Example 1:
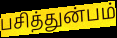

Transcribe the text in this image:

பசித்துன்பம்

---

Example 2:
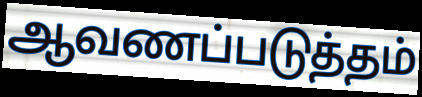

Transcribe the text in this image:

ஆவணப்படுத்தம்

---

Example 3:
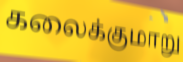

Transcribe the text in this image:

கலைக்குமாறு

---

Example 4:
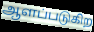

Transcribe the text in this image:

ஆளப்படுகிற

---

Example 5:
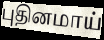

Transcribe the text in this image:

புதினமாய்